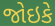
જોઇકે